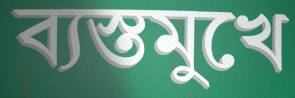
ব্যস্তমুখে